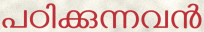
പഠിക്കുന്നവൻ